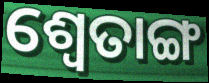
ଶ୍ୱେତାଙ୍ଗ